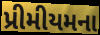
પ્રીમીયમના